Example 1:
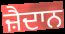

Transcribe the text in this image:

ਜ਼ੈਦਾਨ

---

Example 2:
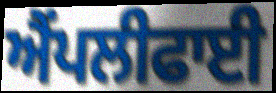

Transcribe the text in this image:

ਐਂਪਲੀਫਾਈ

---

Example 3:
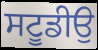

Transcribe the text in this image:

ਸਟੂਡੀਉ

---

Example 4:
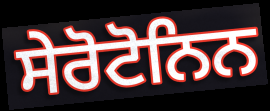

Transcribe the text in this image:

ਸੇਰੋਟੋਨਿਨ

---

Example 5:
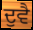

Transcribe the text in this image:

ਦੁਵੈ